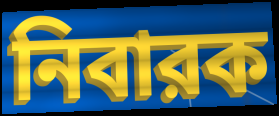
নিবারক